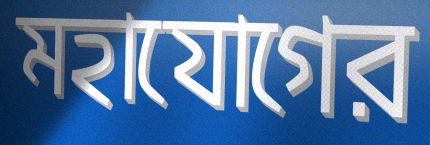
মহাযোগের